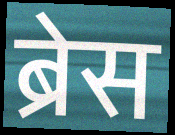
ब्रेस